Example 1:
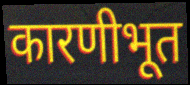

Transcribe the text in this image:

कारणीभूत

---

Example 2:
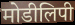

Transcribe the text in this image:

मोडीलिपी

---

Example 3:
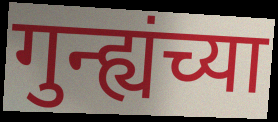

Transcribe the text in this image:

गुन्ह्यंच्या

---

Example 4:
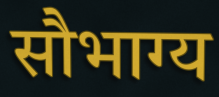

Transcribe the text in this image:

सौभाग्य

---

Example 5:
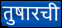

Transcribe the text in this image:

तुषारची